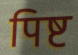
पिष्ट